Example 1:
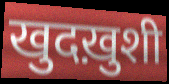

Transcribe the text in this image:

खुदख़ुशी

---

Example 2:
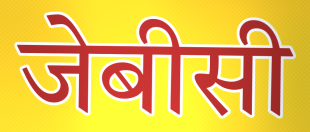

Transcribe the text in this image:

जेबीसी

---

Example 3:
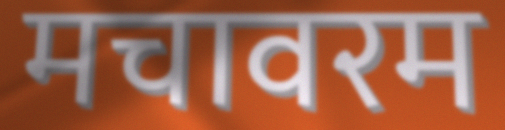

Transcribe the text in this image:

मचावरम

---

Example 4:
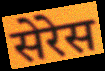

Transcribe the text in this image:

सेरेस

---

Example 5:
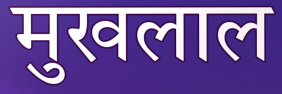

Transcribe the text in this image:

मुखलाल